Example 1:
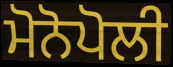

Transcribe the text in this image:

ਮੋਨੋਪੋਲੀ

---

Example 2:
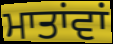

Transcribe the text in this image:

ਮਾਤਾਂਵਾਂ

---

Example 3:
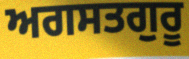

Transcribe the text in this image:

ਅਗਸਤਗੁਰੂ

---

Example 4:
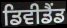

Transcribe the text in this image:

ਡਿਵੀਡੈਂਡ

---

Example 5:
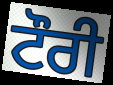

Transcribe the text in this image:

ਟੌਰੀ